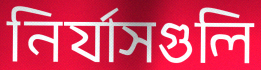
নির্যাসগুলি